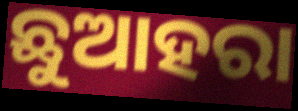
ଛୁଆହରା